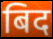
बिद